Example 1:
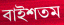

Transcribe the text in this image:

বাইশতম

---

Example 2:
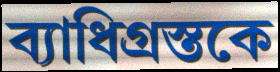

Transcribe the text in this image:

ব্যাধিগ্রস্তকে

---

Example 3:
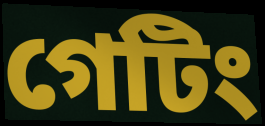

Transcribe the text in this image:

গেটিং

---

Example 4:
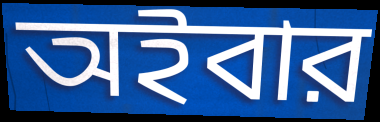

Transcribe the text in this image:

অইবার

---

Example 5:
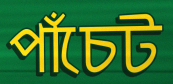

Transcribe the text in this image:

পাঁচেট